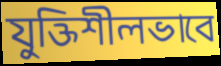
যুক্তিশীলভাবে